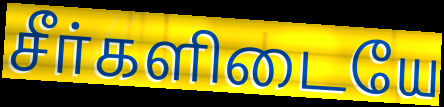
சீர்களிடையே